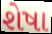
શેષા